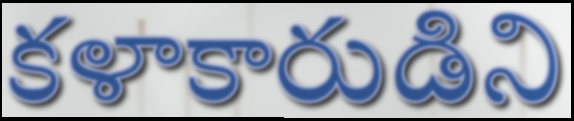
కళాకారుడిని